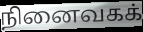
நினைவகக்